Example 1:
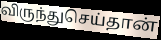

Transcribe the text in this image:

விருந்துசெய்தான்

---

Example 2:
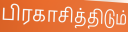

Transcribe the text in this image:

பிரகாசித்திடும்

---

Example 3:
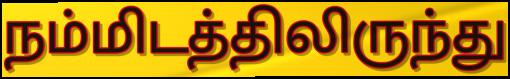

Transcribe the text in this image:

நம்மிடத்திலிருந்து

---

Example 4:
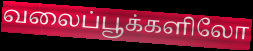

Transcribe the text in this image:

வலைப்பூக்களிலோ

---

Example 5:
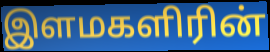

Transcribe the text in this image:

இளமகளிரின்